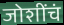
जोशींचं